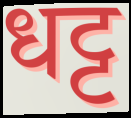
धट्ट